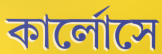
কার্লোসে